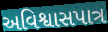
અવિશ્વાસપાત્ર